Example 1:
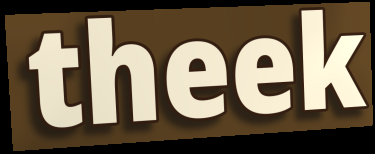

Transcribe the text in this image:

theek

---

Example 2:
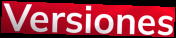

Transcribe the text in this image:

Versiones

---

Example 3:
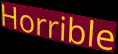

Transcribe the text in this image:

Horrible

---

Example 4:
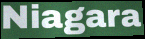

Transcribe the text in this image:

Niagara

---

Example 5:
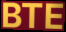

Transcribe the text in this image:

BTE